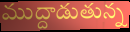
ముద్దాడుతున్న